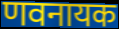
णवनायक